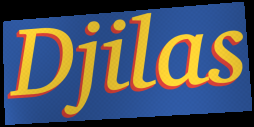
Djilas